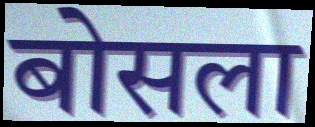
बोसला